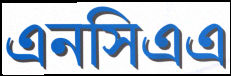
এনসিএএ